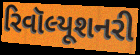
રિવૉલ્યૂશનરી